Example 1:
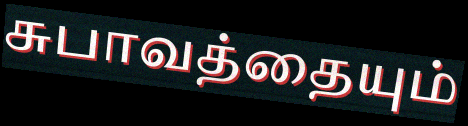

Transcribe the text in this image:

சுபாவத்தையும்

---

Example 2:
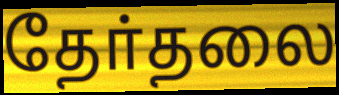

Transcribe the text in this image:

தேர்தலை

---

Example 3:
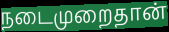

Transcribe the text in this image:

நடைமுறைதான்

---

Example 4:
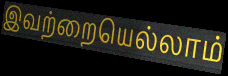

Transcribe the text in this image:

இவற்றையெல்லாம்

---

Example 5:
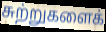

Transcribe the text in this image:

சுற்றுகளைக்